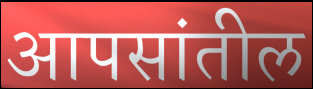
आपसांतील